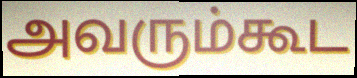
அவரும்கூட